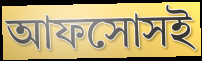
আফসোসই